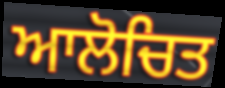
ਆਲੋਚਿਤ